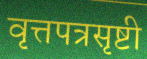
वृत्तपत्रसृष्टी